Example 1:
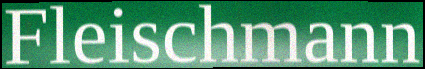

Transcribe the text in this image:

Fleischmann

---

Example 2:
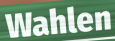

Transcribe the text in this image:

Wahlen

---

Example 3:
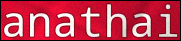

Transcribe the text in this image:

anathai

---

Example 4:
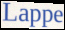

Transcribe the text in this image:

Lappe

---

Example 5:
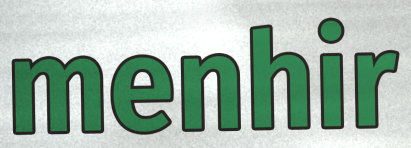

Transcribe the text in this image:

menhir